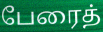
பேரைத்